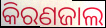
କିରଣଜାଲ